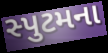
સ્પુટમના